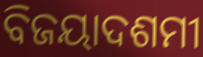
ବିଜୟାଦଶମୀ